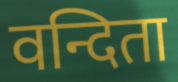
वन्दिता